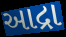
આદ્રા